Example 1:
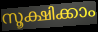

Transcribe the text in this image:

സൂക്ഷിക്കാം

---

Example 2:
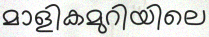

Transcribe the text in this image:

മാളികമുറിയിലെ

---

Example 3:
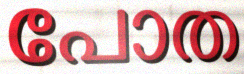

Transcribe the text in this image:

പോത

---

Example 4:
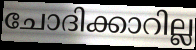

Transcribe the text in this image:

ചോദിക്കാറില്ല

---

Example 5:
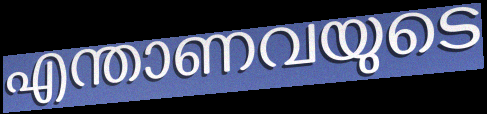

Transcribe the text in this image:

എന്താണവയുടെ